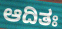
ಆದಿತಃ